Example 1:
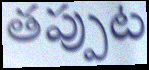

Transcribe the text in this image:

తప్పుట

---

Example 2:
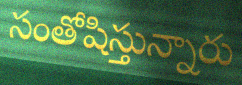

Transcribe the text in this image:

సంతోషిస్తున్నారు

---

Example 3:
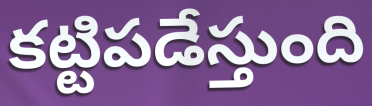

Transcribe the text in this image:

కట్టిపడేస్తుంది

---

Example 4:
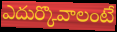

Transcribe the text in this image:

ఎదుర్కొవాలంటే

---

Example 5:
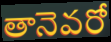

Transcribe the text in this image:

తానెవరో